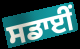
ਸਡਾਈਂ